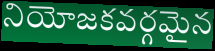
నియోజకవర్గమైన